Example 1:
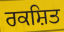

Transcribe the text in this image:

ਰਕਸ਼ਿਤ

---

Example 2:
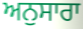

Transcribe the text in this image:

ਅਨੁਸਾਰਾ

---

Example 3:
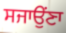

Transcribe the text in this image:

ਸਜਾਉਂਣਾ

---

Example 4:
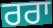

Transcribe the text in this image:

ਰਰਾ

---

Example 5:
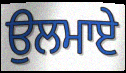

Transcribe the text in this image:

ਉਲਮਾਏ